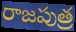
రాజపుత్ర